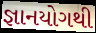
જ્ઞાનયોગથી